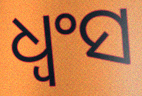
ଧ୍ୱଂସ